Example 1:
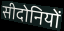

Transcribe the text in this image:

सीदोनियों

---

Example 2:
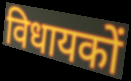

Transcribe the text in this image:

विधायकों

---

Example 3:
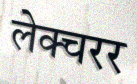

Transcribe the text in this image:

लेक्चरर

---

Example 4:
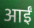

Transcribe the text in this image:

आईं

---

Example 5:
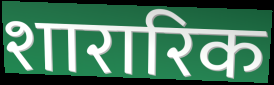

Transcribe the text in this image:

शारारिक